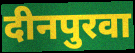
दीनपुरवा